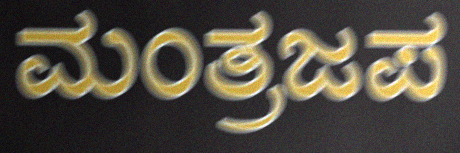
ಮಂತ್ರಜಪ